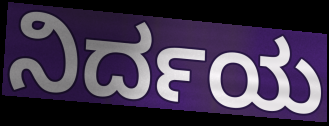
ನಿರ್ದಯ